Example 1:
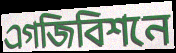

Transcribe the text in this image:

এগজিবিশনে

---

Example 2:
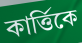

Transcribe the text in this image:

কার্ত্তিকে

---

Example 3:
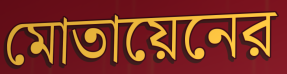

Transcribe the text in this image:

মোতায়েনের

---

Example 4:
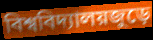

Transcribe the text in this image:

বিশ্ববিদ্যালয়জুড়ে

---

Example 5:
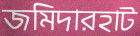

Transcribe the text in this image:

জমিদারহাট